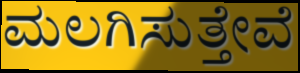
ಮಲಗಿಸುತ್ತೇವೆ